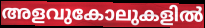
അളവുകോലുകളിൽ